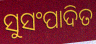
ସୁସଂପାଦିତ